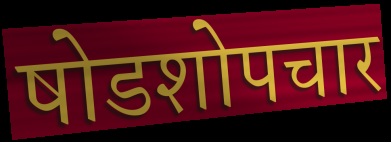
षोडशोपचार